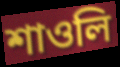
শাওলি